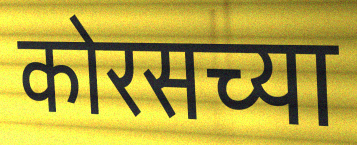
कोरसच्या